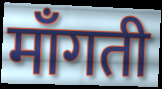
माँगती